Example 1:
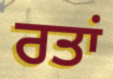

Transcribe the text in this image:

ਰਤਾਂ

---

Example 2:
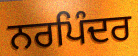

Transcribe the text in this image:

ਨਰਪਿੰਦਰ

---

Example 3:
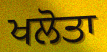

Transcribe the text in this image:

ਖਲੋਤਾ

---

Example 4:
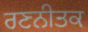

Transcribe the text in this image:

ਰਣਨੀਤਕ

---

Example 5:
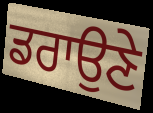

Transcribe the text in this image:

ਡਰਾਉਣੇ